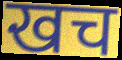
खच